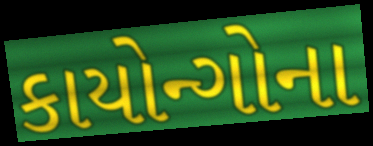
કાયોન્ગોના